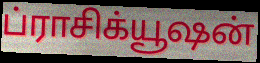
ப்ராசிக்யூஷன்